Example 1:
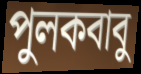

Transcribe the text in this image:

পুলকবাবু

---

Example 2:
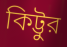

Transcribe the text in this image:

কিট্টুর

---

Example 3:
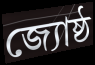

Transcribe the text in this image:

জ্যোষ্ঠ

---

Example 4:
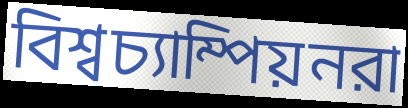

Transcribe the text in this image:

বিশ্বচ্যাম্পিয়নরা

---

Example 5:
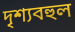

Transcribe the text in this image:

দৃশ্যবহুল